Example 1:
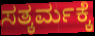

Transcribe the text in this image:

ಸತ್ಕರ್ಮಕ್ಕೆ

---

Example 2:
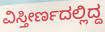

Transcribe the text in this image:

ವಿಸ್ತೀರ್ಣದಲ್ಲಿದ್ದ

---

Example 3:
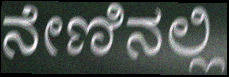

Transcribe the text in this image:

ನೇಣಿನಲ್ಲಿ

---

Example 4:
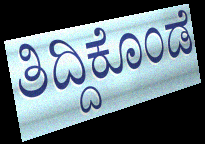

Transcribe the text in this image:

ತಿದ್ದಿಕೊಂಡೆ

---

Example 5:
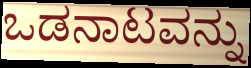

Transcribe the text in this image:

ಒಡನಾಟವನ್ನು